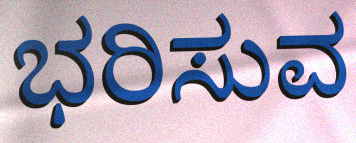
ಭರಿಸುವ